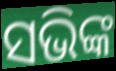
ସଭିଙ୍କ